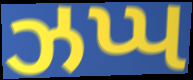
ઝપ્પ